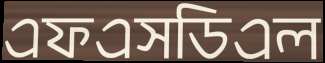
এফএসডিএল